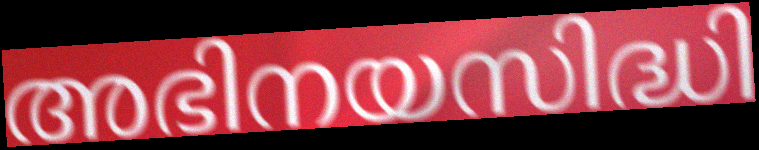
അഭിനയസിദ്ധി